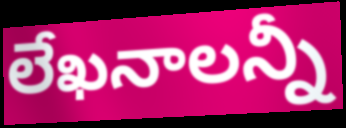
లేఖనాలన్నీ